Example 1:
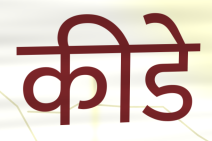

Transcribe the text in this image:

कीडे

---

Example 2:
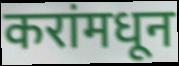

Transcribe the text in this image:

करांमधून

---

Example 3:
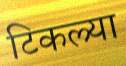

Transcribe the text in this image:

टिकल्या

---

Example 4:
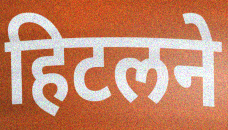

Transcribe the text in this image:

हिटलने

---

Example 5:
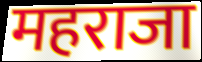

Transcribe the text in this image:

महराजा